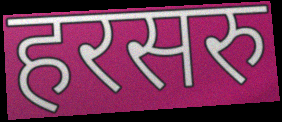
हरसरु